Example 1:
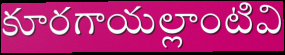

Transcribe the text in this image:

కూరగాయల్లాంటివి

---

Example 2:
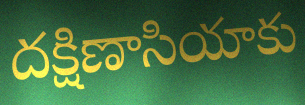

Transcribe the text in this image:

దక్షిణాసియాకు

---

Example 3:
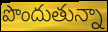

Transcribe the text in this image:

పొందుతున్నా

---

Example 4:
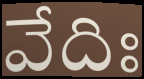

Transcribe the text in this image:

వేదిః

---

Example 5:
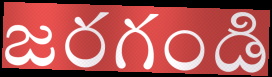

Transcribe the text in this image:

జరగండి